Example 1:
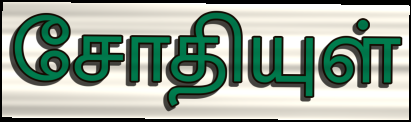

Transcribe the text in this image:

சோதியுள்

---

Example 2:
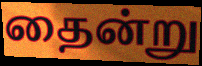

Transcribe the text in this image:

தைன்று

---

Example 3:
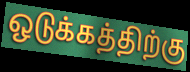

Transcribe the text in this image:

ஒடுக்கத்திற்கு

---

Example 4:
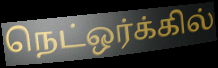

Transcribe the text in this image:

நெட்ஒர்க்கில்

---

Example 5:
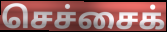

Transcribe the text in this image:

செச்சைக்